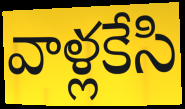
వాళ్లకేసి